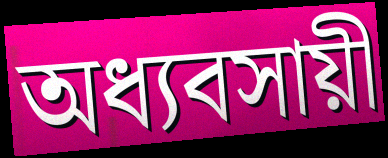
অধ্যবসায়ী